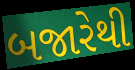
બજારેથી